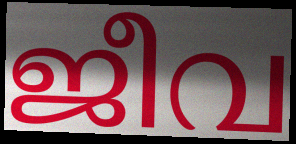
ജീവ